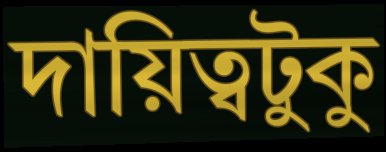
দায়িত্বটুকু